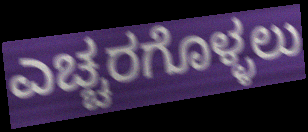
ಎಚ್ಚರಗೊಳ್ಳಲು